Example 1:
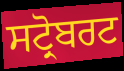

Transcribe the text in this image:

ਸਟ੍ਰੋਬਰਟ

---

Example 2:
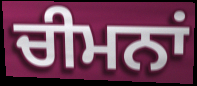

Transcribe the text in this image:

ਚੀਮਨਾਂ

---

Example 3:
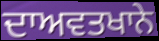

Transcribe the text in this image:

ਦਾਅਵਤਖਾਨੇ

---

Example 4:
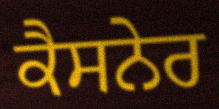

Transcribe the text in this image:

ਕੈਸਨੇਰ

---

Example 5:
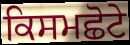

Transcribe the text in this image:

ਕਿਸਮਛੋਟੇ